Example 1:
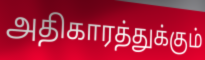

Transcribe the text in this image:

அதிகாரத்துக்கும்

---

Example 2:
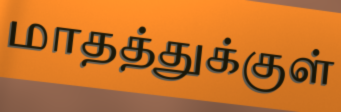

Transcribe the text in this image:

மாதத்துக்குள்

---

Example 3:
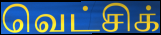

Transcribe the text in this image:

வெட்சிக்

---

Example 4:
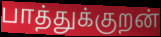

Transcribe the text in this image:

பாத்துக்குறன்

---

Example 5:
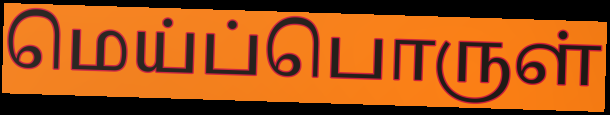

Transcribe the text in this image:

மெய்ப்பொருள்